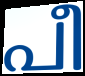
പീ